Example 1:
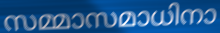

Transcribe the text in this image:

സമ്മാസമാധിനാ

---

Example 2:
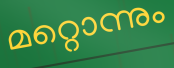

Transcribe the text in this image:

മറ്റൊന്നും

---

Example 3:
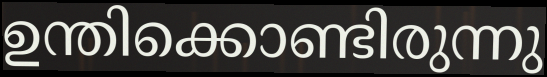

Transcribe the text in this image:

ഉന്തിക്കൊണ്ടിരുന്നു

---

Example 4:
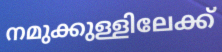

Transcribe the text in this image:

നമുക്കുള്ളിലേക്ക്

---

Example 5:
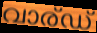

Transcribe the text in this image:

വാര്ഡ്